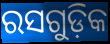
ରସଗୁଡ଼ିକ